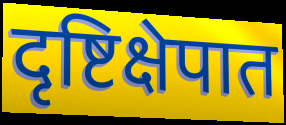
दृष्टिक्षेपात